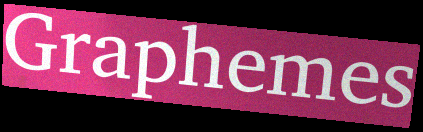
Graphemes